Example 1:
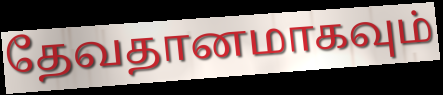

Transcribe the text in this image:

தேவதானமாகவும்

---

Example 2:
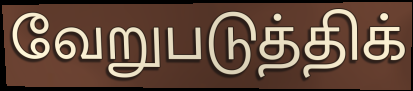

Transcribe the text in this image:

வேறுபடுத்திக்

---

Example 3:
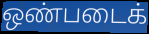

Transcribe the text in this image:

ஒண்படைக்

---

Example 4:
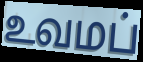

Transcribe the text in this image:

உவமப்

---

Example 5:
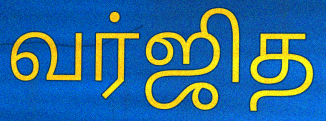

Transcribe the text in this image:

வர்ஜித